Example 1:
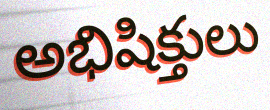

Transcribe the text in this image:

అభిషిక్తులు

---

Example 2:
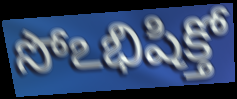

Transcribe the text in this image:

సోఽభిషిక్తో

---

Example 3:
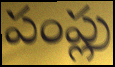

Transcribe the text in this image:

పంప్లు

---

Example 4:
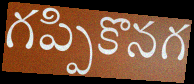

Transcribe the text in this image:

గప్పికొనగ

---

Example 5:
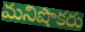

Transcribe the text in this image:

మనిషొకరు